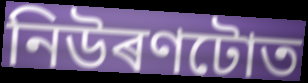
নিউৰণটোত